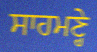
ਸਾਹਮਣ੍ਹੇ